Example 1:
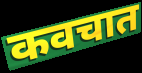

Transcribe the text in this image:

कवचात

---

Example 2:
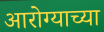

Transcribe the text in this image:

आरोग्याच्या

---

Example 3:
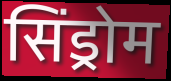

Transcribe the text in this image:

सिंड्रोम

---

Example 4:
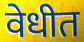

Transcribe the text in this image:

वेधीत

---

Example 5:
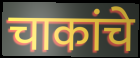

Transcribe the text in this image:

चाकांचे